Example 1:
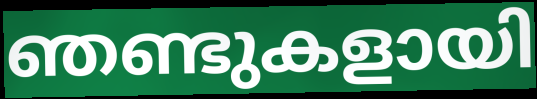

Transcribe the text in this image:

ഞണ്ടുകളായി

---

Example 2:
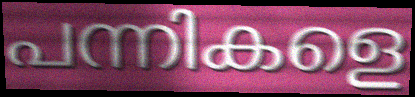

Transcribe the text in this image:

പന്നികളെ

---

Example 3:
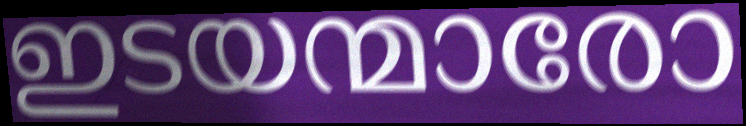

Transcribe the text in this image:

ഇടയന്മാരോ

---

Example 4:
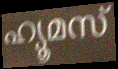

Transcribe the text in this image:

ഹ്യൂമസ്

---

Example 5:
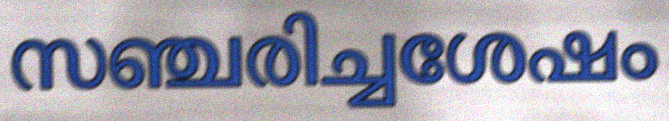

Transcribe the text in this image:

സഞ്ചരിച്ചശേഷം